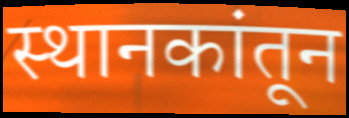
स्थानकांतून